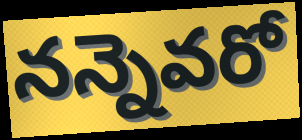
నన్నెవరో